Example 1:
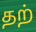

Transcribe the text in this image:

தற்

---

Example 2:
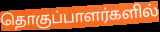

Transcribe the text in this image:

தொகுப்பாளர்களில்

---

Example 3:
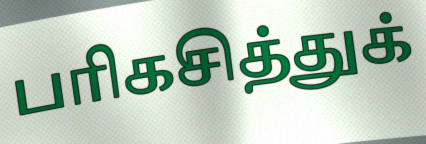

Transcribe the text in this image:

பரிகசித்துக்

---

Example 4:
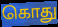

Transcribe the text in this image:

கொது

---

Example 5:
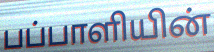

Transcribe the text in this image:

பப்பாளியின்